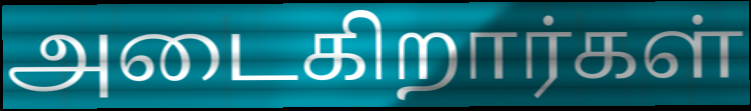
அடைகிறார்கள்